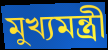
মুখ্য়মন্ত্রী